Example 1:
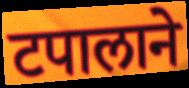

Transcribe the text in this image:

टपालाने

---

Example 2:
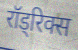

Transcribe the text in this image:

रॉड्रिक्स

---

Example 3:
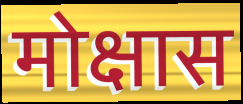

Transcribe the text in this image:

मोक्षास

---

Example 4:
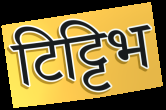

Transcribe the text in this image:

टिट्टिभ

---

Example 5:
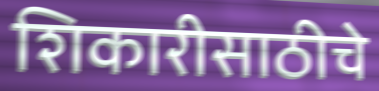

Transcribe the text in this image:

शिकारीसाठीचे